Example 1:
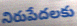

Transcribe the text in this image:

నిరుపేదలకు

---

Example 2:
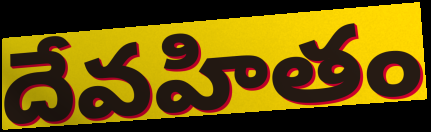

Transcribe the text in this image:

దేవహితం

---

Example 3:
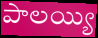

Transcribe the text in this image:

పాలయ్యి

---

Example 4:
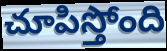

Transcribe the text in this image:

చూపిస్తోంది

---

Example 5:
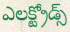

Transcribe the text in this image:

ఎలక్ట్రోడ్స్